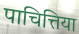
पाचित्तिया